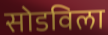
सोडविला